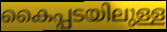
കൈപ്പടയിലുള്ള